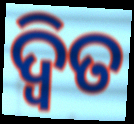
ଦ୍ବିତ